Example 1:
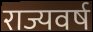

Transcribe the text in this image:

राज्यवर्ष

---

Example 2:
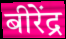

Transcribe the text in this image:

बीरेंद्र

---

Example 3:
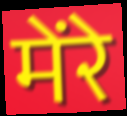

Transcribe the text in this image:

मेंरे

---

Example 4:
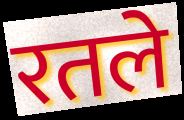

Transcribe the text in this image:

रतले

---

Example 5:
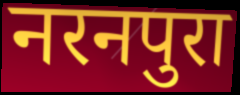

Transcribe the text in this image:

नरनपुरा